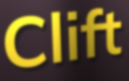
Clift